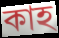
কাহ